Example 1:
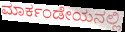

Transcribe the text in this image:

ಮಾರ್ಕಂಡೇಯನಲ್ಲಿ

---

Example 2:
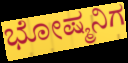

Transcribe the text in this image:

ಭೋಷ್ಮನಿಗ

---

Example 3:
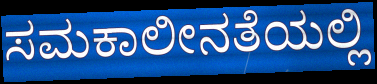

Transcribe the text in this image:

ಸಮಕಾಲೀನತೆಯಲ್ಲಿ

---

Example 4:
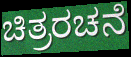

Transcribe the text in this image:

ಚಿತ್ರರಚನೆ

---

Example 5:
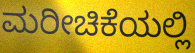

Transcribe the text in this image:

ಮರೀಚಿಕೆಯಲ್ಲಿ